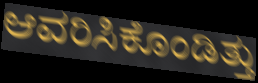
ಆವರಿಸಿಕೊಂಡಿತ್ತು